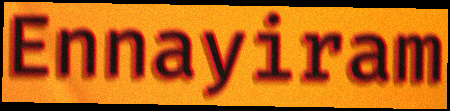
Ennayiram